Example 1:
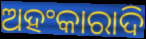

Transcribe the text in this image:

ଅହଂକାରାଦି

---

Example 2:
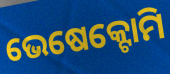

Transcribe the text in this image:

ଭେଷେକ୍ଟୋମି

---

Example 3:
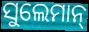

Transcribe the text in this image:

ସୁଲେମାନ୍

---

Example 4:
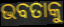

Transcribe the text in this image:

ଭବତାକୁ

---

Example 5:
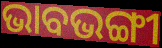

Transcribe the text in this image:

ଭାବଭଙ୍ଗୀ